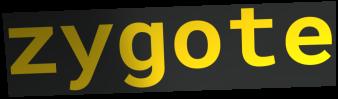
zygote